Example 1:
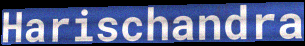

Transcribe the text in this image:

Harischandra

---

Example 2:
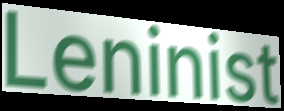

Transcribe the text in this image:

Leninist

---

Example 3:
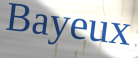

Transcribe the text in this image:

Bayeux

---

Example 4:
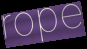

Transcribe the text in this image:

rope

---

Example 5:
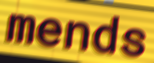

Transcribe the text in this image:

mends